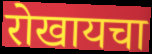
रोखायचा